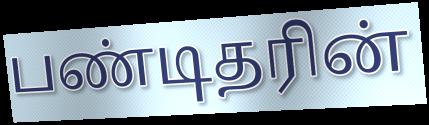
பண்டிதரின்